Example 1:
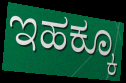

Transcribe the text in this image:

ಇಹಕ್ಕೂ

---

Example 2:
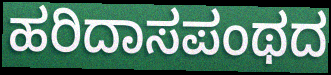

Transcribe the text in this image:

ಹರಿದಾಸಪಂಥದ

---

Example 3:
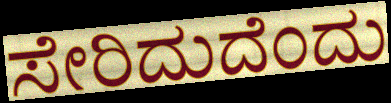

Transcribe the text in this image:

ಸೇರಿದುದೆಂದು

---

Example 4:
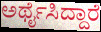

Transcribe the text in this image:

ಅರ್ಥೈಸಿದ್ದಾರೆ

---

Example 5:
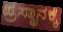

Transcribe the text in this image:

ಪ್ರಸ್ಥಾನಕ್ಕೆ